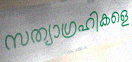
സത്യാഗ്രഹികളെ